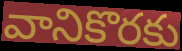
వానికొరకు